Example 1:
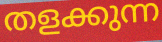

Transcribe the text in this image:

തളക്കുന്ന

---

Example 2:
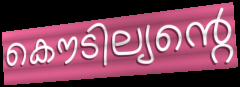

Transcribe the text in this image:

കൌടില്യന്റെ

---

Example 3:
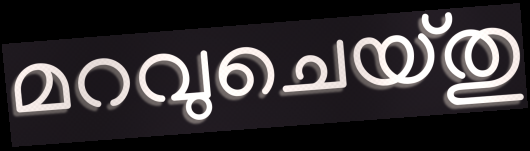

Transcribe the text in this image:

മറവുചെയ്തു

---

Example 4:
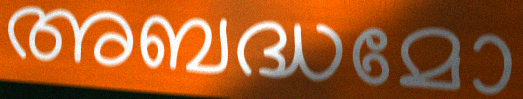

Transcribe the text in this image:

അബദ്ധമോ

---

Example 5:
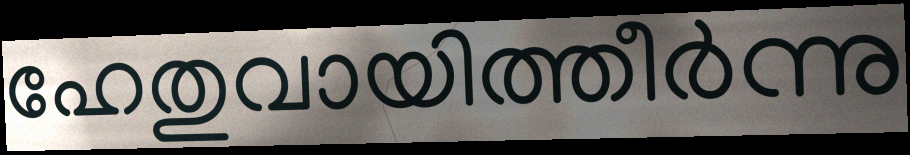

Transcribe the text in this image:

ഹേതുവായിത്തീർന്നു